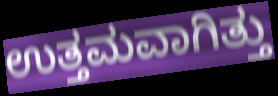
ಉತ್ತಮವಾಗಿತ್ತು